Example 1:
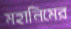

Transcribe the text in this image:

মহানিমের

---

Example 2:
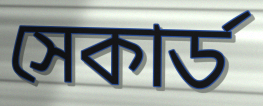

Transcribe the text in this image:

সেকার্ড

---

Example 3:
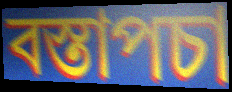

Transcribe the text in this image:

বস্তাপচা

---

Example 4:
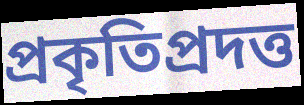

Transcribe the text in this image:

প্রকৃতিপ্রদত্ত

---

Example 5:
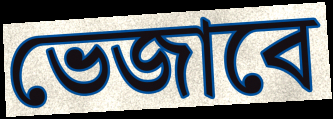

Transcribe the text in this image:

ভেজাবে